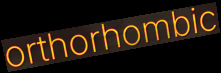
orthorhombic